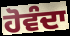
ਹੋਵੰਦਾ